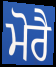
ਮੋਰੈ